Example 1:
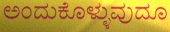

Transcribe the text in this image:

ಅಂದುಕೊಳ್ಳುವುದೂ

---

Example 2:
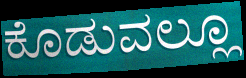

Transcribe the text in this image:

ಕೊಡುವಲ್ಲೂ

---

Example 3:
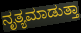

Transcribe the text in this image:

ನೃತ್ಯಮಾಡುತ್ತಾ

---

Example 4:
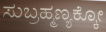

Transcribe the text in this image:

ಸುಬ್ರಹ್ಮಣ್ಯಕ್ಕೋ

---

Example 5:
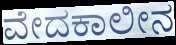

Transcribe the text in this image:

ವೇದಕಾಲೀನ